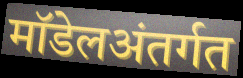
मॉडेलअंतर्गत